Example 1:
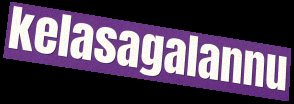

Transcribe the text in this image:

kelasagalannu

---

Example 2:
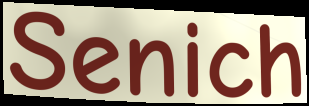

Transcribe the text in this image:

Senich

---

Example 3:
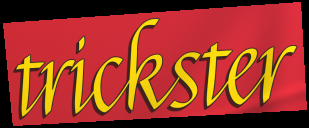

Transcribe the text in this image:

trickster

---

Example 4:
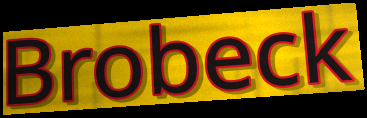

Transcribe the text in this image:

Brobeck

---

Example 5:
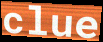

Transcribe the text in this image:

clue